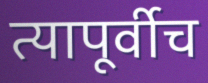
त्यापूर्वीच